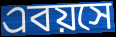
এবয়সে